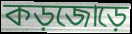
কড়জোড়ে